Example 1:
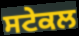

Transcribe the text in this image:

ਸਟੇਕਲ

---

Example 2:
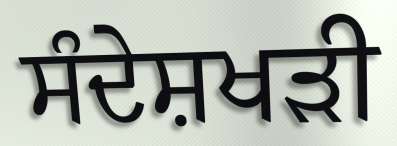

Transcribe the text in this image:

ਸੰਦੇਸ਼ਖੜੀ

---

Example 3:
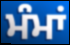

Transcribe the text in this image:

ਮੰਮਾਂ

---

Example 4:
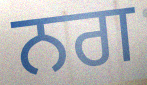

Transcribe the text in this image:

ਨਗ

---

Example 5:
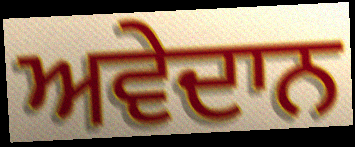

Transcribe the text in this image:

ਅਵੇਦਾਨ